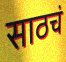
साठचं